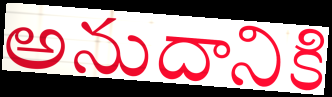
అనుదానికి